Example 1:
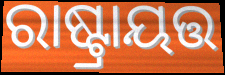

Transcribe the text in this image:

ରାଷ୍ଟ୍ରାୟତ୍ତ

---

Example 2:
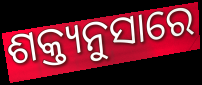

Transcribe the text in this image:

ଶକ୍ତ୍ୟନୁସାରେ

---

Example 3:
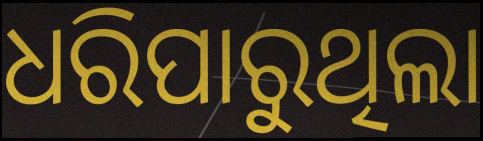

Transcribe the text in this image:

ଧରିପାରୁଥିଲା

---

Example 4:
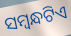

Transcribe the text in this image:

ସମ୍ୱନ୍ଧଟିଏ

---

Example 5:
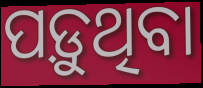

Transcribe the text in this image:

ପଡ଼ୁଥିବା